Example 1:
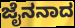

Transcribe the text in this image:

ಜೈನನಾದ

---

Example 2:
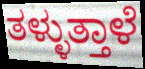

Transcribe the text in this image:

ತಳ್ಳುತ್ತಾಳೆ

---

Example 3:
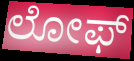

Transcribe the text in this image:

ಲೋಫ್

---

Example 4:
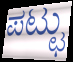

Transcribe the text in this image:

ಪಟ್ಟು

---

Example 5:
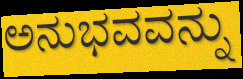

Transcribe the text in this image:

ಅನುಭವವನ್ನು